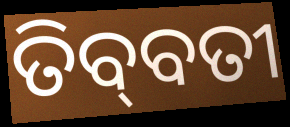
ତିବ୍‌ବତୀ